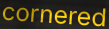
cornered